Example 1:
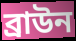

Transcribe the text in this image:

ব্ৰাউন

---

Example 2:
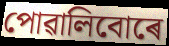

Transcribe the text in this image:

পোৱালিবোৰে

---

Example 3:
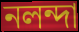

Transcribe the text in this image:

নলন্দা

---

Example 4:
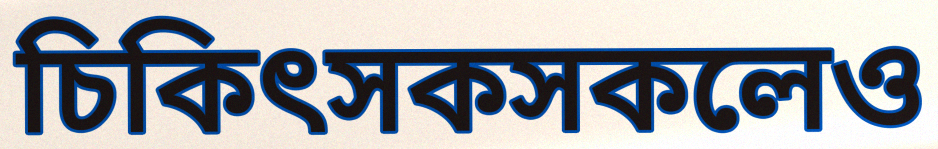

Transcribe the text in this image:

চিকিৎসকসকলেও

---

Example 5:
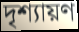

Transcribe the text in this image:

দৃশ্যায়ণ